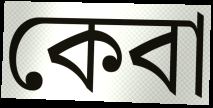
কেবা